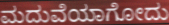
ಮದುವೆಯಾಗೋದು